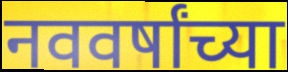
नववर्षांच्या